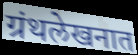
ग्रंथलेखनात